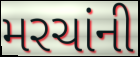
મરચાંની